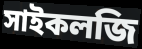
সাইকলজি